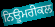
ਨਿਊਮਰੀਕਲ